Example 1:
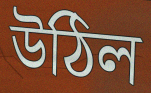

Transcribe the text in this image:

উঠিল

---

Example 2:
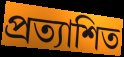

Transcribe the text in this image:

প্ৰত্যাশিত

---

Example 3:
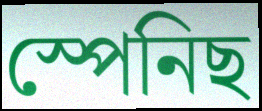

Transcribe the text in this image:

স্পেনিছ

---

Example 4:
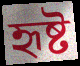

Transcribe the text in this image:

হৃষ্ট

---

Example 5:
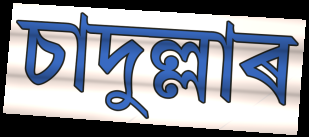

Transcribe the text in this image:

চাদুল্লাৰ